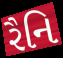
રૈનિ